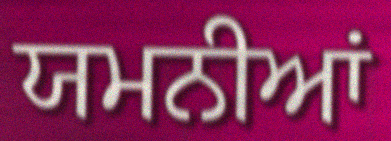
ਯਮਨੀਆਂ